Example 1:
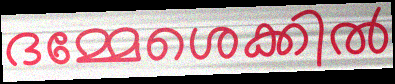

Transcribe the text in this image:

ദമ്മേശെക്കിൽ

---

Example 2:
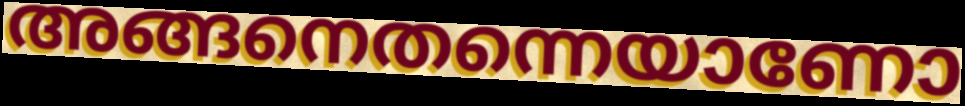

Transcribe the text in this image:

അങ്ങനെതന്നെയാണോ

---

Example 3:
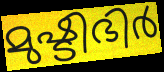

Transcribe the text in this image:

മുഷ്ടിഭിർ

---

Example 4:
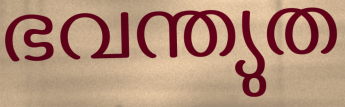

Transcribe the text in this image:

ഭവന്ത്യുത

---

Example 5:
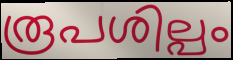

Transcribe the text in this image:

രൂപശില്പം